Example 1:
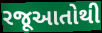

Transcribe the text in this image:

રજૂઆતોથી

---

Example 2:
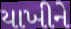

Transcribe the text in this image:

યાખીને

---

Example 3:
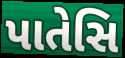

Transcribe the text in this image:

પાતેસિ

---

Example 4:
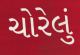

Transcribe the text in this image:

ચોરેલું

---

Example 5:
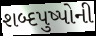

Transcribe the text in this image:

શબ્દપુષ્પોની